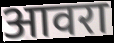
आवरा